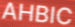
AHBIC